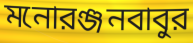
মনোরঞ্জনবাবুর